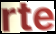
rte